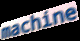
machine